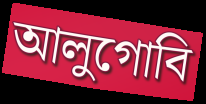
আলুগোবি